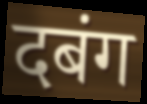
दबंग